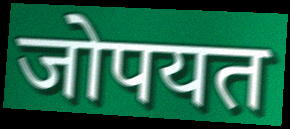
जोपयत